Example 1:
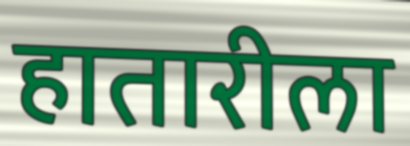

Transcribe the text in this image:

हातारीला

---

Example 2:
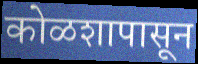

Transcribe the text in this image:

कोळशापासून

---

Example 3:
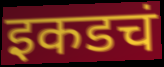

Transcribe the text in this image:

इकडचं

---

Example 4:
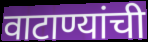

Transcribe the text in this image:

वाटाण्यांची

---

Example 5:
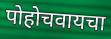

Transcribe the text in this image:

पोहोचवायचा